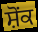
ਸ਼ੋਂਕ